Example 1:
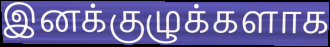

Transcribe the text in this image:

இனக்குழுக்களாக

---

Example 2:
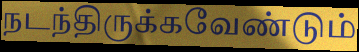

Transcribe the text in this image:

நடந்திருக்கவேண்டும்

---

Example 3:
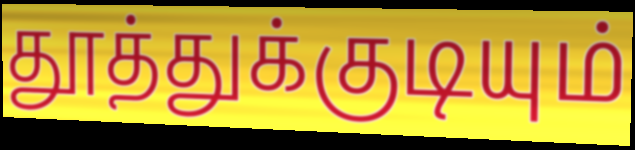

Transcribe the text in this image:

தூத்துக்குடியும்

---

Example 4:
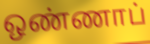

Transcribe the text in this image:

ஒண்ணாப்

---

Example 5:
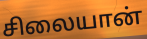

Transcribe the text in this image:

சிலையான்